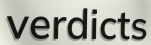
verdicts